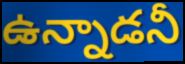
ఉన్నాడనీ